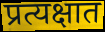
प्रत्यक्षात